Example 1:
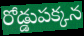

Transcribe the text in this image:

రోడ్డుపక్కన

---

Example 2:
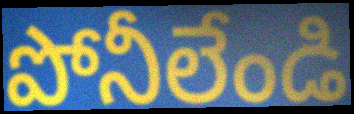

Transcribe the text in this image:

పోనీలేండి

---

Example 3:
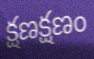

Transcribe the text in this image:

క్షణక్షణం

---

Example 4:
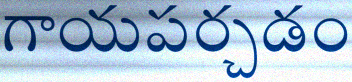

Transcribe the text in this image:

గాయపర్చడం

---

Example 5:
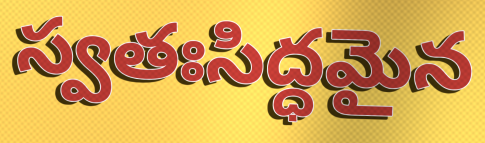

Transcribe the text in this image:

స్వతఃసిద్ధమైన